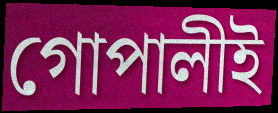
গোপালীই